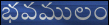
భవములం